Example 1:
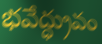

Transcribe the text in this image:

భవేద్ధ్రువం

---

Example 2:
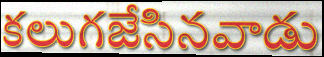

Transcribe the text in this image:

కలుగజేసినవాడు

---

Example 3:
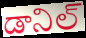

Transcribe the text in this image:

డానిల్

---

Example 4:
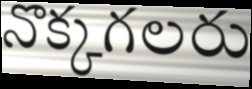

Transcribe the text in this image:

నొక్కగలరు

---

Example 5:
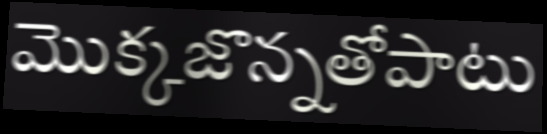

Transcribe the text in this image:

మొక్కజొన్నతోపాటు